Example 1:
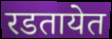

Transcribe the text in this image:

रडतायेत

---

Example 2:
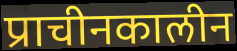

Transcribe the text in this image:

प्राचीनकालीन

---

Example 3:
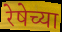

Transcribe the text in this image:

रेषेच्या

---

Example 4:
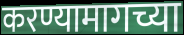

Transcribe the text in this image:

करण्यामागच्या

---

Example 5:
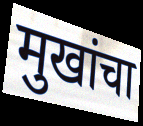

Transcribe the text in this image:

मुखांचा